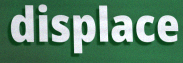
displace